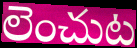
లెంచుట